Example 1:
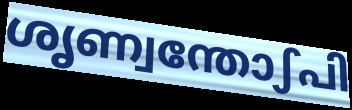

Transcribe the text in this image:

ശൃണ്വന്തോഽപി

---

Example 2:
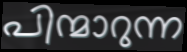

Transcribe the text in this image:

പിന്മാറുന്ന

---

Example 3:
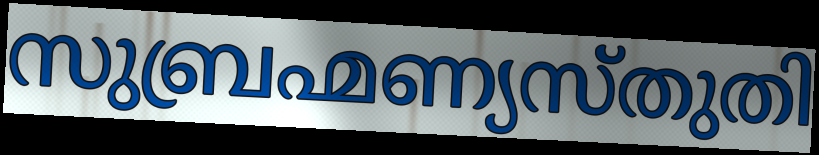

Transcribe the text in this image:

സുബ്രഹ്മണ്യസ്തുതി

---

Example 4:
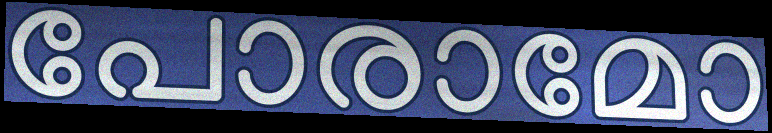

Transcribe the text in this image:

പോരാമോ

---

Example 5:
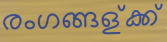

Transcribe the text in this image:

രംഗങ്ങള്ക്ക്